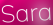
Sara